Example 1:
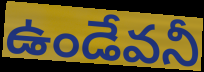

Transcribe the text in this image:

ఉండేవనీ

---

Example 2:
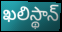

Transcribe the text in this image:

ఖలిస్థాన్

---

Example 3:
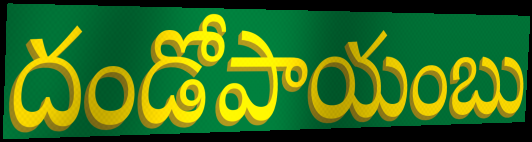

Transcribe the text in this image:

దండోపాయంబు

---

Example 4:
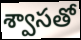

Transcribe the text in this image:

శ్వాసతో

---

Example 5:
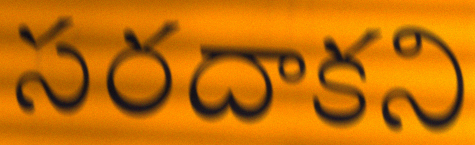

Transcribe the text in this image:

సరదాకని